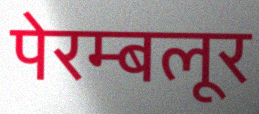
पेरम्बलूर